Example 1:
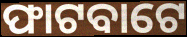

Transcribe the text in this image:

ଫାଟବାଟେ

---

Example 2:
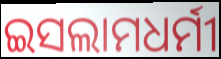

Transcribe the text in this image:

ଇସଲାମଧର୍ମୀ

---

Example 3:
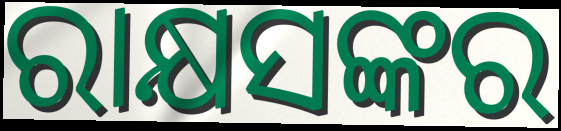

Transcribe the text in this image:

ରାକ୍ଷସଙ୍କର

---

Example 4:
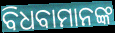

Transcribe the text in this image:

ବିଧବାମାନଙ୍କ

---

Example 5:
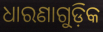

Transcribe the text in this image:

ଧାରଣାଗୁଡ଼ିକ